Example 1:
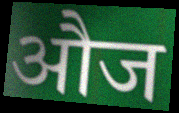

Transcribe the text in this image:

औज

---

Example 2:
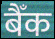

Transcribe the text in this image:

बैँक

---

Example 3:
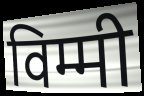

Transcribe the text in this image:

विम्मी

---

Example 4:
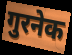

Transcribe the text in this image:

गुरनेक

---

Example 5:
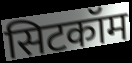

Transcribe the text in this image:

सिटकॉम